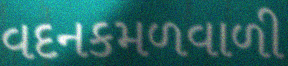
વદનકમળવાળી